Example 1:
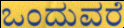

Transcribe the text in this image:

ಒಂದುವರೆ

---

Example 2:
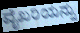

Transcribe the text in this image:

ವೈಖರಿಯನ್ನು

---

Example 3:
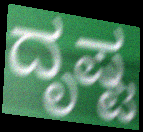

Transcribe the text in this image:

ದೃಷ್ಟ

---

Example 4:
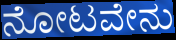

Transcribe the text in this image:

ನೋಟವೇನು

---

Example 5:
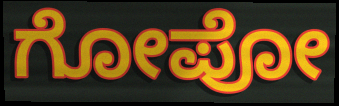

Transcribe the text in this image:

ಗೋಪೋ